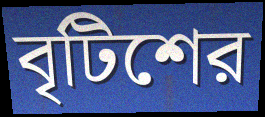
বৃটিশের